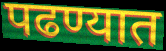
पढण्यात